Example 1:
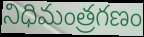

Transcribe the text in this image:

నిధిమంత్రగణం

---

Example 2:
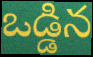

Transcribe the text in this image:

ఒడ్డిన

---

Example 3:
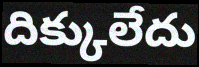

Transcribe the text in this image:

దిక్కులేదు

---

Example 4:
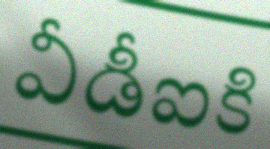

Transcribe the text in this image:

వీడీఐకి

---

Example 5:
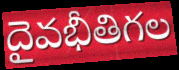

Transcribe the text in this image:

దైవభీతిగల